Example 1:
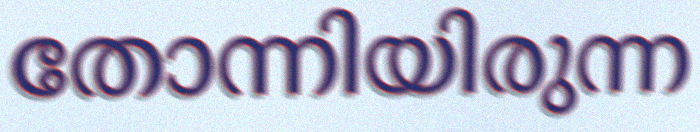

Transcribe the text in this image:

തോന്നിയിരുന്ന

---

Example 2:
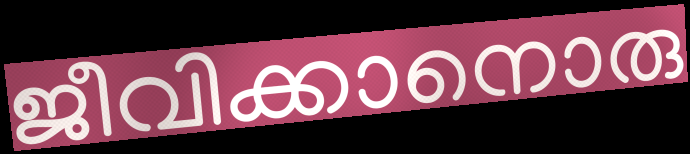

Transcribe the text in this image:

ജീവിക്കാനൊരു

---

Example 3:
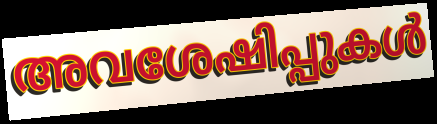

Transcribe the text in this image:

അവശേഷിപ്പുകൾ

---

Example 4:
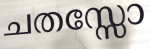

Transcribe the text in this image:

ചതസ്സോ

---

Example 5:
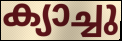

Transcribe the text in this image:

ക്യാച്ചു